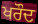
ਖਰੌਦ